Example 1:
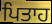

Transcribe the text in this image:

ਪਿਤਾਹ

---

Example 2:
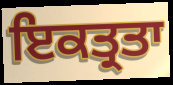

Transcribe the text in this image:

ਇਕਤ੍ਰਤਾ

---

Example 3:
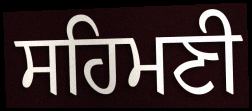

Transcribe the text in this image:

ਸਹਿਮਣੀ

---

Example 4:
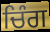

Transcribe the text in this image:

ਚਿੰਗ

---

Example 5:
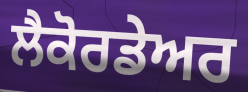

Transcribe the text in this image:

ਲੈਕੋਰਡੇਅਰ